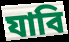
যাবি